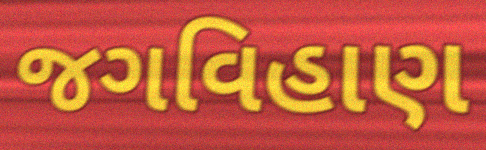
જગવિહાણ